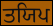
ਤਯਿਪ